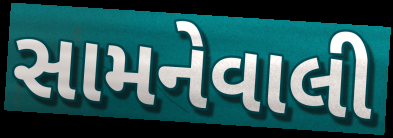
સામનેવાલી